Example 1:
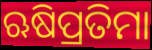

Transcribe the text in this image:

ଋଷିପ୍ରତିମା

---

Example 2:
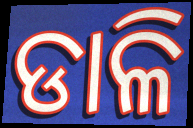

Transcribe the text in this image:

ଡାଳି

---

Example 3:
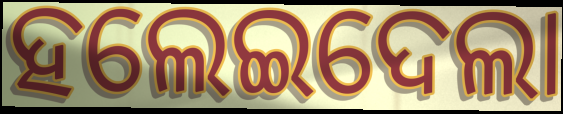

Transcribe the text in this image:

ହଲେଇଦେଲା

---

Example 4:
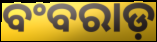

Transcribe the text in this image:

ବଂବରାଡ଼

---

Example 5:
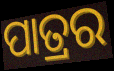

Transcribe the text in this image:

ପାତ୍ରର